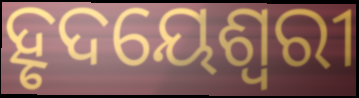
ହୃଦୟେଶ୍ୱରୀ